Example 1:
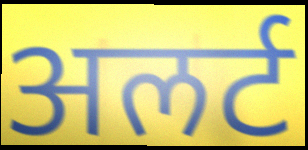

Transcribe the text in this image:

अलर्ट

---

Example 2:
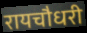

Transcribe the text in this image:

रायचौधरी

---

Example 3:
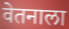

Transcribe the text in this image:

वेतनाला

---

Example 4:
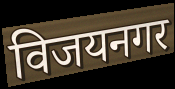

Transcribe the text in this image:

विजयनगर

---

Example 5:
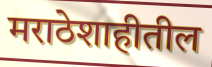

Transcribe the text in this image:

मराठेशाहीतील